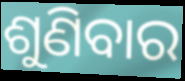
ଶୁଣିବାର